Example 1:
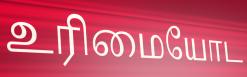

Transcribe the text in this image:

உரிமையோட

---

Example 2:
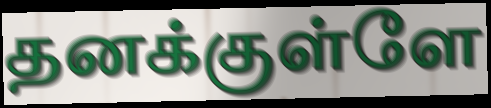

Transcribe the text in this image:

தனக்குள்ளே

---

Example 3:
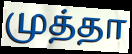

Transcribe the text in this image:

முத்தா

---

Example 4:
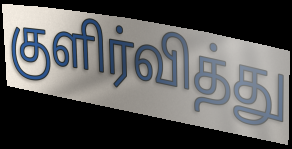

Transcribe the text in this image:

குளிர்வித்து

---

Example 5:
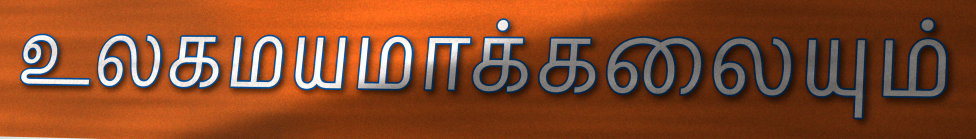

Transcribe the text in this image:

உலகமயமாக்கலையும்